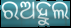
ରଅହୁଲ